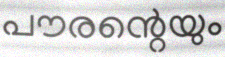
പൗരന്റെയും